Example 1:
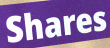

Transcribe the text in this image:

Shares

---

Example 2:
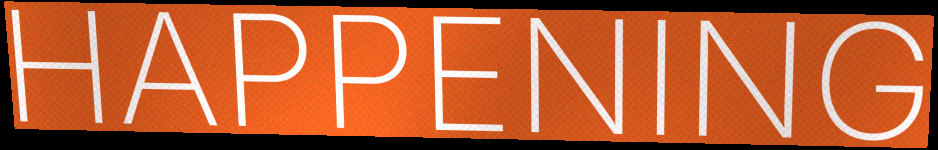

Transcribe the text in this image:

HAPPENING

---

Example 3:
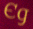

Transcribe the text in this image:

Eg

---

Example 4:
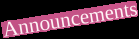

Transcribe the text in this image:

Announcements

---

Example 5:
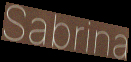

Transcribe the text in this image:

Sabrina